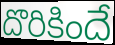
దొరికిందే